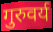
गुरुवर्य